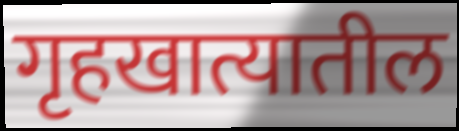
गृहखात्यातील